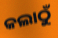
କଲାଠୁଁ